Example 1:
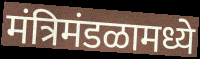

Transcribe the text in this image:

मंत्रिमंडळामध्ये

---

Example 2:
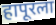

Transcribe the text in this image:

हापूरला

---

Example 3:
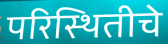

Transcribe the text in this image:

परिस्थितीचे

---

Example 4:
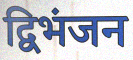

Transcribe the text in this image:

द्विभंजन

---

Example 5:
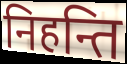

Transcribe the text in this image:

निहन्ति